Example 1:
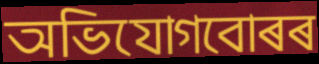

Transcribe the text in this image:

অভিযোগবোৰৰ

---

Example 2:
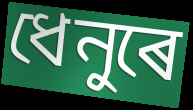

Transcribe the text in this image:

ধেনুৰে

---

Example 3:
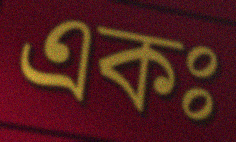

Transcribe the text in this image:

একঃ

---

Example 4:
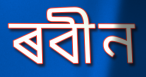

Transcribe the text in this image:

ৰবীন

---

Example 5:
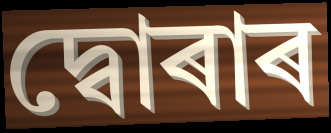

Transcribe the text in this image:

দ্বোৰাৰ